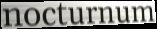
nocturnum